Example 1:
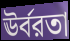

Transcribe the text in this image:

ঊর্বরতা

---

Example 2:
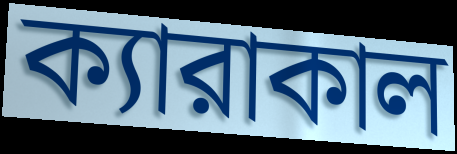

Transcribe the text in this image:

ক্যারাকাল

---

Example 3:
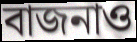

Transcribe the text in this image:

বাজনাও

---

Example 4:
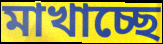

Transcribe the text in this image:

মাখাচ্ছে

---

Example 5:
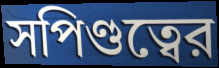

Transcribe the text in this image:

সপিণ্ডত্বের